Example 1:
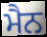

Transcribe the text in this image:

ਮੈਨ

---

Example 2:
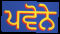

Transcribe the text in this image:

ਪਵੋਨੇ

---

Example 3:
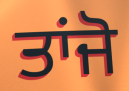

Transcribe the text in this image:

ਤਾਂਜੋ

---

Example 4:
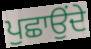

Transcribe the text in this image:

ਪੁਛਾਉਂਦੇ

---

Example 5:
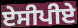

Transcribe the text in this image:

ਏਸੀਪੀਏ